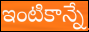
ఇంటికాన్నే